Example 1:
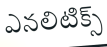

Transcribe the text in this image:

ఎనలిటిక్స్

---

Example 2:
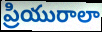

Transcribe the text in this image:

ప్రియురాలా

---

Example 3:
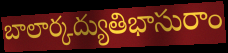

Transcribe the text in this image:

బాలార్కద్యుతిభాసురాం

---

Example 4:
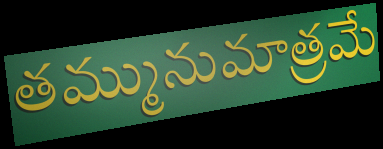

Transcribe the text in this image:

తమ్మునుమాత్రమే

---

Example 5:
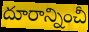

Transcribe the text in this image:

దూరాన్నించీ